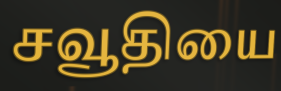
சவூதியை